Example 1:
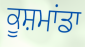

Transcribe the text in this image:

ਕੂਸ਼ਮਾਂਡਾ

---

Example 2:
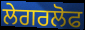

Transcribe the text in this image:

ਲੇਗਰਲੋਫ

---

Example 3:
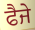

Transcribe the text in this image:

ਫੈਜੇ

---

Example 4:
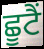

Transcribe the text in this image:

ਛੂਟੈਂ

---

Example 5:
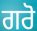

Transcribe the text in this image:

ਗਰੋ